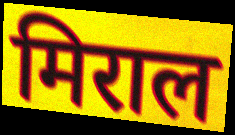
मिराल